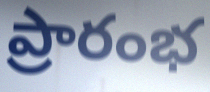
ప్రారంభ